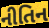
નીતિન